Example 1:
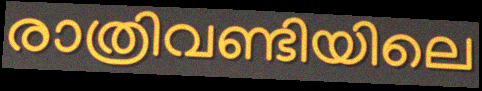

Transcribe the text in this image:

രാത്രിവണ്ടിയിലെ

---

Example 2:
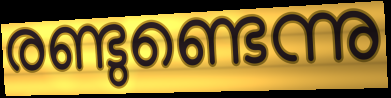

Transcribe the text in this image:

രണ്ടുണ്ടെന്നു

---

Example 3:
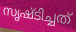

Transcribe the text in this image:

സൃഷ്ടിച്ചത്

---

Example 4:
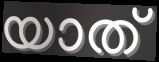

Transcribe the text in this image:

യാത്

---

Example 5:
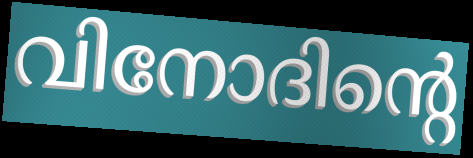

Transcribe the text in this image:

വിനോദിന്റെ